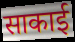
साकाई